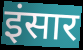
इंसार